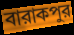
বারাকপুর